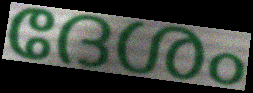
ദേശം